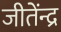
जीतेंन्द्र